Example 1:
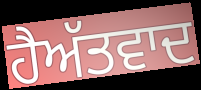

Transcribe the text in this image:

ਹੈਅੱਤਵਾਦ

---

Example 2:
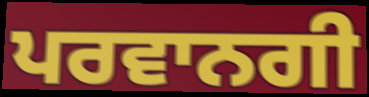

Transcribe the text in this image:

ਪਰਵਾਨਗੀ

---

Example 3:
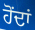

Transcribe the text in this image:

ਹੋਂਦਾਂ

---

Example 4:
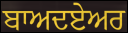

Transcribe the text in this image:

ਬਾਅਦਏਅਰ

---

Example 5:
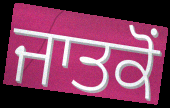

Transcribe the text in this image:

ਜਾਤਕੋਂ